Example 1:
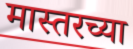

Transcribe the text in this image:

मास्तरच्या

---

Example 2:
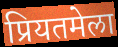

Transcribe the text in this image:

प्रियतमेला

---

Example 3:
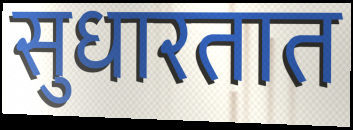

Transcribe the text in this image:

सुधारतात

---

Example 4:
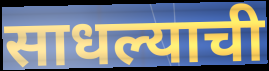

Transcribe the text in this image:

साधल्याची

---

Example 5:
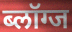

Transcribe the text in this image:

ब्लॉग्ज